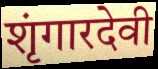
शृंगारदेवी